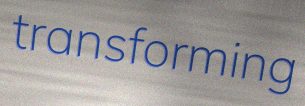
transforming